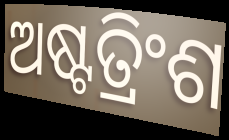
ଅଷ୍ଟତ୍ରିଂଶ